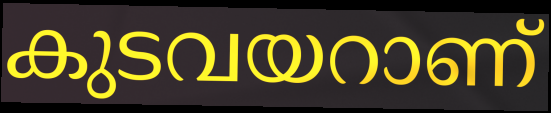
കുടവയറാണ്